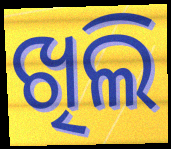
ଖିଲି